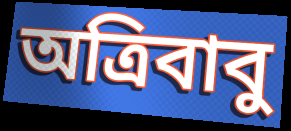
অত্রিবাবু